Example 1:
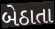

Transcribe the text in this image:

બેઠાતા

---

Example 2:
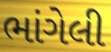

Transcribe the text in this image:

ભાંગેલી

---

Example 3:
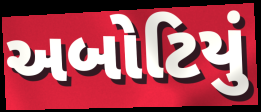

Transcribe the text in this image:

અબોટિયું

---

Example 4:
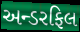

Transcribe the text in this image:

અન્ડરફિલ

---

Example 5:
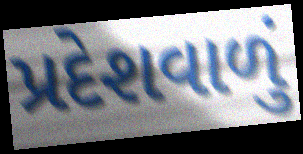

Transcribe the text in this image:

પ્રદેશવાળું